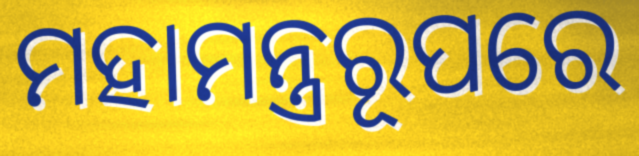
ମହାମନ୍ତ୍ରରୂପରେ